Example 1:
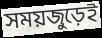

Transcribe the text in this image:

সময়জুড়েই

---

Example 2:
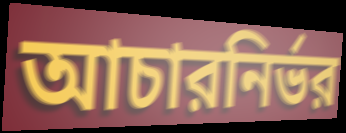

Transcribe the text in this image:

আচারনির্ভর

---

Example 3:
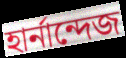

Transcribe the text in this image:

হার্নান্দেজ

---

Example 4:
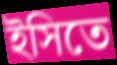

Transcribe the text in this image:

ইসিতে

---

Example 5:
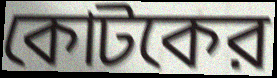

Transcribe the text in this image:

কোটকের